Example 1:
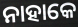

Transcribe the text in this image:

ନାହାକେ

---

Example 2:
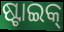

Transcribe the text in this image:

ଷ୍ଟାଇକ୍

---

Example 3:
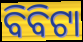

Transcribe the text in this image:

ବିବିଟା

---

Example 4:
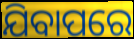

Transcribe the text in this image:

ଯିବାପରେ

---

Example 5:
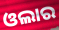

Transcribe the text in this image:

ଓଲାର